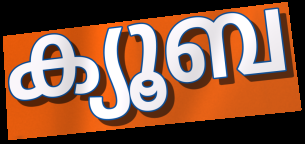
ക്യൂബ